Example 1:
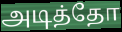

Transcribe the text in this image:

அடித்தோ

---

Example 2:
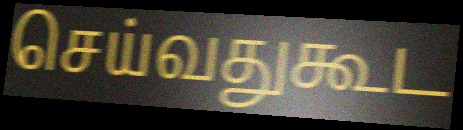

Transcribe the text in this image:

செய்வதுகூட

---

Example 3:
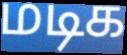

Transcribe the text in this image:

மடிக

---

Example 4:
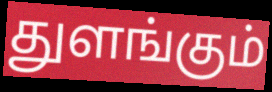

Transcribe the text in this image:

துளங்கும்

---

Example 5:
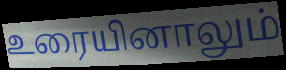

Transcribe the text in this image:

உரையினாலும்